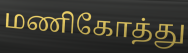
மணிகோத்து